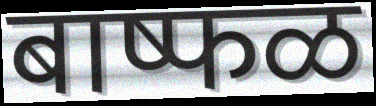
बाष्फळ